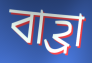
বাহ্রা